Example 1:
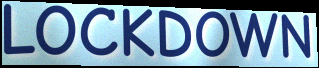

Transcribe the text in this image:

LOCKDOWN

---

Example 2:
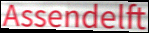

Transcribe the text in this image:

Assendelft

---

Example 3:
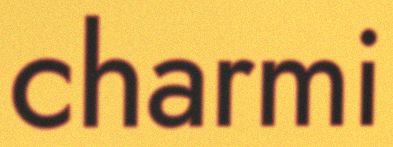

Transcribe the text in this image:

charmi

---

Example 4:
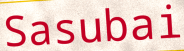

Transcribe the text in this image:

Sasubai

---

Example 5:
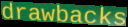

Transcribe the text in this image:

drawbacks